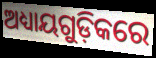
ଅଧ୍ୟାୟଗୁଡ଼ିକରେ